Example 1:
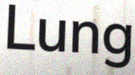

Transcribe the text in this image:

Lung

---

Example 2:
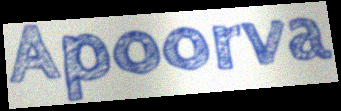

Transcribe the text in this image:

Apoorva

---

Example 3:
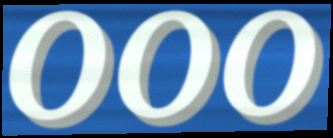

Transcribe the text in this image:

ooo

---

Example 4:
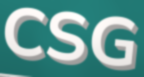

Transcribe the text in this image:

CSG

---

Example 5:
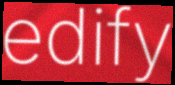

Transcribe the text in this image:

edify